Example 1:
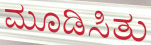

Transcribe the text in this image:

ಮೂಡಿಸಿತು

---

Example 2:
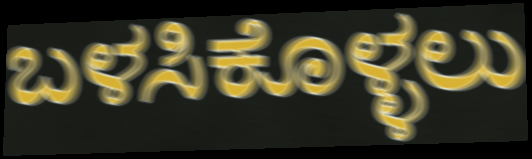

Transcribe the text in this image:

ಬಳಸಿಕೊಳ್ಳಲು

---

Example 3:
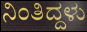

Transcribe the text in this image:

ನಿಂತಿದ್ದಳು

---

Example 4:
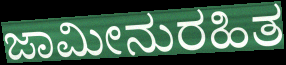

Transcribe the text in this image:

ಜಾಮೀನುರಹಿತ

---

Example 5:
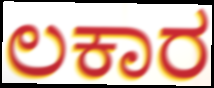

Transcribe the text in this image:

ಲಕಾರ